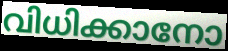
വിധിക്കാനോ